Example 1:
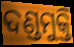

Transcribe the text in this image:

ଦଣ୍ଡମୁକ୍ତି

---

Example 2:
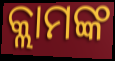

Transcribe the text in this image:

କ୍ଲାମଙ୍କ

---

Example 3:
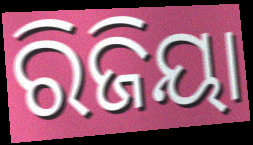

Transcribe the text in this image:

ରିଜିୟା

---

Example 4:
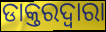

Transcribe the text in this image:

ଡାକ୍ତରଦ୍ୱାରା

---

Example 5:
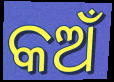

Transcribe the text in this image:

କଅଁ